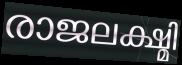
രാജലക്ഷ്മി